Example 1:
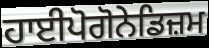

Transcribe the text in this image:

ਹਾਈਪੋਗੋਨੇਡਿਜ਼ਮ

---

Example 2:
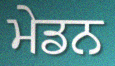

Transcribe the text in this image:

ਮੇਡਨ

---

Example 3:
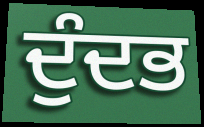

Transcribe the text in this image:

ਦੁੰਦਭ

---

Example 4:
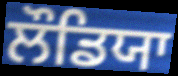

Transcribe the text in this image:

ਲੌਡਿਯਾ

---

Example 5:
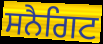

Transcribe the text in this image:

ਸਨੈਗਿਟ